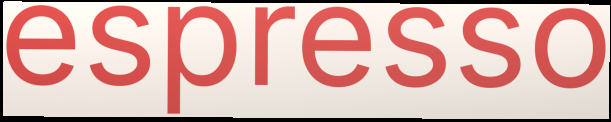
espresso